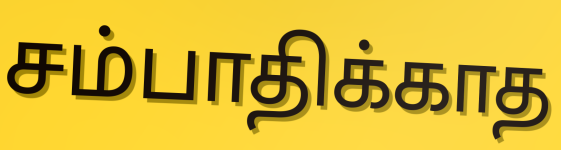
சம்பாதிக்காத